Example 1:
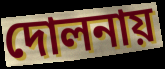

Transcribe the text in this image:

দোলনায়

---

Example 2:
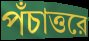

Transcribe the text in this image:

পঁচাত্তরে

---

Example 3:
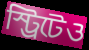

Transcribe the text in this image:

স্ট্রিটেও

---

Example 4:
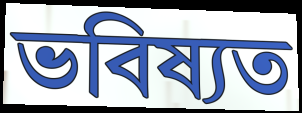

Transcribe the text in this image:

ভবিষ্যত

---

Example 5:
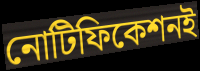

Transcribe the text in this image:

নোটিফিকেশনই